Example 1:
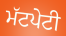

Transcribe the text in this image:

ਮੱਟਪੇਟੀ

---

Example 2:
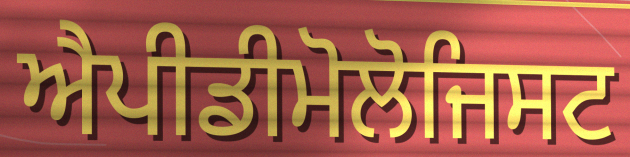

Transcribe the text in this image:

ਐਪੀਡੀਮੋਲੋਜਿਸਟ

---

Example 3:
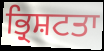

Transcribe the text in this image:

ਭ੍ਰਿਸ਼ਟਤਾ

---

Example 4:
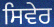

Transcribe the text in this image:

ਸਿਵੇਰ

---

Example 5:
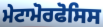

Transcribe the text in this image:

ਮੇਟਾਮੋਰਫੋਸਿਸ